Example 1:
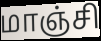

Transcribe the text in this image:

மாஞ்சி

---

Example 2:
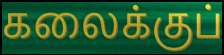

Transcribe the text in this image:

கலைக்குப்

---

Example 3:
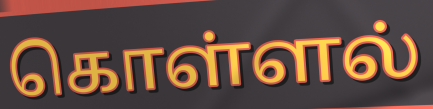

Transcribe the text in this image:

கொள்ளல்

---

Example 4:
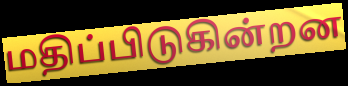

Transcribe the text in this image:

மதிப்பிடுகின்றன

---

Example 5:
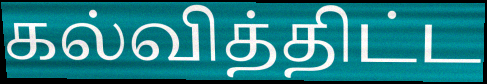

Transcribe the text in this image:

கல்வித்திட்ட